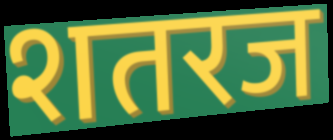
शतरज